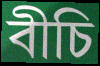
বীচি